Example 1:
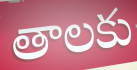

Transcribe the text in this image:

తాలకు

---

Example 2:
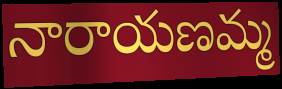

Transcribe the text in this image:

నారాయణమ్మ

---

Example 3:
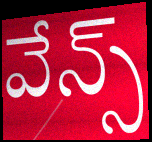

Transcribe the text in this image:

వేన్స్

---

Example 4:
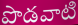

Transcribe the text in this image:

పొడవాటి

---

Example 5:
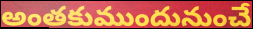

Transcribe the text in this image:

అంతకుముందునుంచే